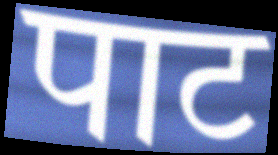
पाट